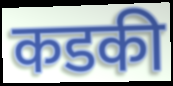
कडकी